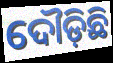
ଦୌଡ଼ିଛି